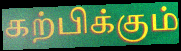
கற்பிக்கும்